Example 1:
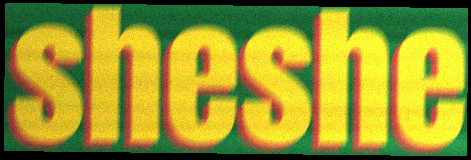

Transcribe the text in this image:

sheshe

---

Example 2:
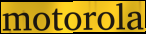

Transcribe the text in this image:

motorola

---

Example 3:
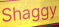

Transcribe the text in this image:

Shaggy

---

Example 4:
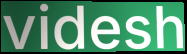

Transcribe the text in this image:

videsh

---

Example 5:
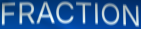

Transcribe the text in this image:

FRACTION